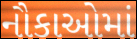
નૌકાઓમાં